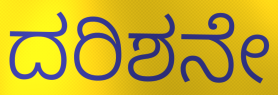
ದರಿಶನೇ